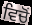
ਵਿਚੋਂ